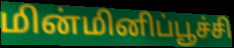
மின்மினிப்பூச்சி